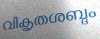
വികൃതശബ്ദം